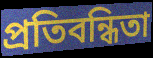
প্রতিবন্ধিতা